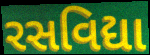
રસવિદ્યા